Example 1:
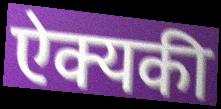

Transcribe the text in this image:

ऐक्यकी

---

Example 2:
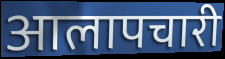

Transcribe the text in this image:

आलापचारी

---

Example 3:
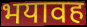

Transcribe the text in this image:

भयावह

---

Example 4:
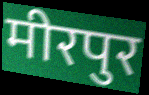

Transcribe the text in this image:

मीरपुर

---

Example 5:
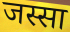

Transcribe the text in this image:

जस्सा